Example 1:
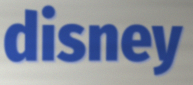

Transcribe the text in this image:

disney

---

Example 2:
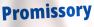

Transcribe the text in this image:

Promissory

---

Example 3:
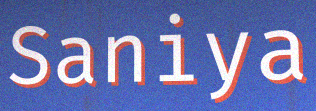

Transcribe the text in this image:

Saniya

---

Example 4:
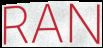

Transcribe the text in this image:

RAN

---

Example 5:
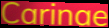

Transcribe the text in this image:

Carinae